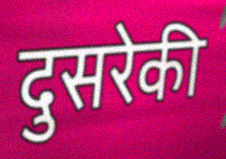
दुसरेकी